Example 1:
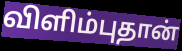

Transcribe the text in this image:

விளிம்புதான்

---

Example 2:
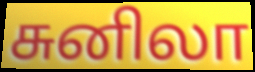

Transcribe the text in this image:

சுனிலா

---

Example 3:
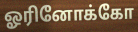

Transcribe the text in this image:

ஓரினோக்கோ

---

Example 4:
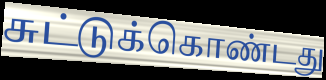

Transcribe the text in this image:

சுட்டுக்கொண்டது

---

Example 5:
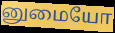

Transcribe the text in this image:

னுமையோ